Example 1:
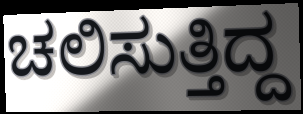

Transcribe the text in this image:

ಚಲಿಸುತ್ತಿದ್ದ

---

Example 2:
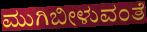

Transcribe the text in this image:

ಮುಗಿಬೀಳುವಂತೆ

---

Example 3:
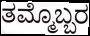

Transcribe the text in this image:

ತಮ್ಮೊಬ್ಬರ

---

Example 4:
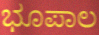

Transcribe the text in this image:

ಭೂಪಾಲ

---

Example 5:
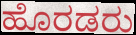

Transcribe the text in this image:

ಹೊರಡರು